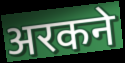
अरकने